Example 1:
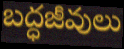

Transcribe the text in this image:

బద్ధజీవులు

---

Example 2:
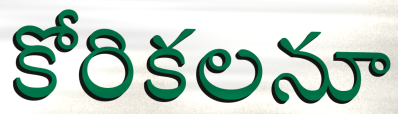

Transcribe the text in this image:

కోరికలనూ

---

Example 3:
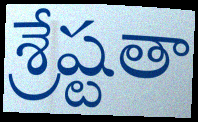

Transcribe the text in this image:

శ్రేష్టతా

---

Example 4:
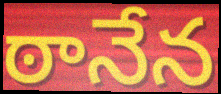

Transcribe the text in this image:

ఠానేన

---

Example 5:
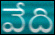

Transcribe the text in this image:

వేది